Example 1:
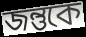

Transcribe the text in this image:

জন্তুকে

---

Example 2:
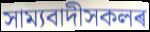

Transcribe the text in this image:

সাম্যবাদীসকলৰ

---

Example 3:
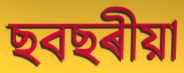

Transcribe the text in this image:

ছবছৰীয়া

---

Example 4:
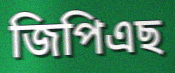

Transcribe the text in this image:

জিপিএছ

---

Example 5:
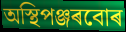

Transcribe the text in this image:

অস্থিপঞ্জৰবোৰ